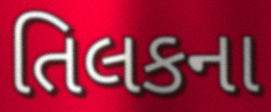
તિલકના